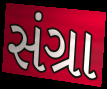
સંગ્રા